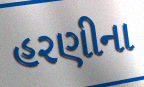
હરણીના